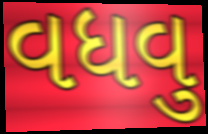
વધવુ